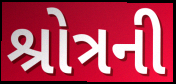
શ્રોત્રની